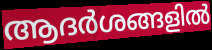
ആദർശങ്ങളിൽ